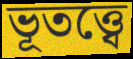
ভূতত্ত্বে